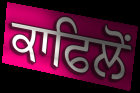
ਕਾਫਿਲੋਂ